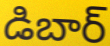
డిబార్